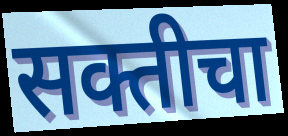
सक्तीचा